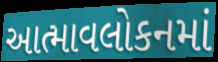
આત્માવલોકનમાં